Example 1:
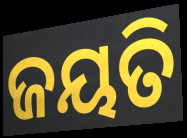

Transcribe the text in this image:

ଜୟତି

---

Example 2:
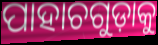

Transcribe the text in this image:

ପାହାଚଗୁଡ଼ାକୁ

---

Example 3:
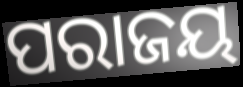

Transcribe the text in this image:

ପରାଜୟ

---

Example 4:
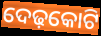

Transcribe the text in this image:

ଦେଢ଼କୋଟି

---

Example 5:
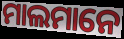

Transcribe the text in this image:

ମାଲମାନେ